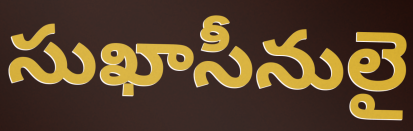
సుఖాసీనులై